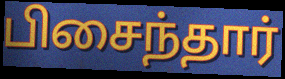
பிசைந்தார்